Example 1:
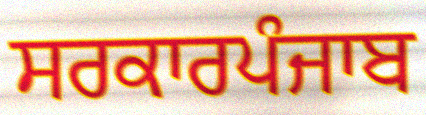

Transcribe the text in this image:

ਸਰਕਾਰਪੰਜਾਬ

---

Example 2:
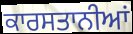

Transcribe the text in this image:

ਕਾਰਸਤਾਨੀਆਂ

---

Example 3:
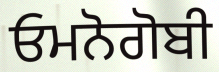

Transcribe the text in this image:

ਓਮਨੋਗੋਬੀ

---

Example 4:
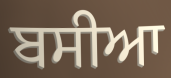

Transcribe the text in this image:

ਬਸੀਆ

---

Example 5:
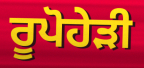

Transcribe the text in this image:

ਰੂਪੋਹੇੜੀ